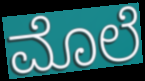
ಮೊಲೆ